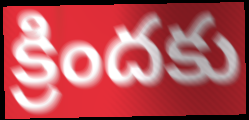
క్రిందకు